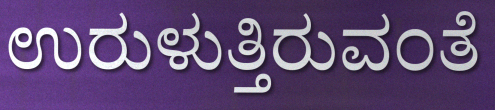
ಉರುಳುತ್ತಿರುವಂತೆ